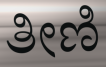
ತೀಣಿ